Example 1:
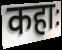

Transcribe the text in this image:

कहाः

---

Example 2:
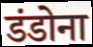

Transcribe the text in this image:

डंडोना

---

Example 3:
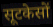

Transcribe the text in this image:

सूटकेसों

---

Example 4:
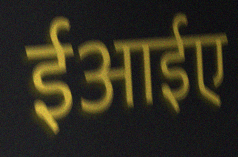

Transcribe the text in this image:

ईआईए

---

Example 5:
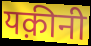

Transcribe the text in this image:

यक़ीनी